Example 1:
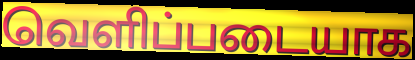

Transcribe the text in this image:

வெளிப்படையாக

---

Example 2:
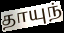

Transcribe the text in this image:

தாயுந்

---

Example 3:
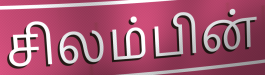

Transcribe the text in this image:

சிலம்பின்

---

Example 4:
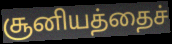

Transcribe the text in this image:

சூனியத்தைச்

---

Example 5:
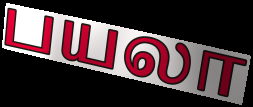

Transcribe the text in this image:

பயலா